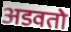
अडवतो